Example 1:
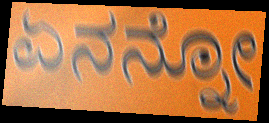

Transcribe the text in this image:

ಏನನ್ನೋ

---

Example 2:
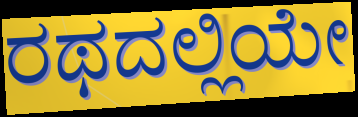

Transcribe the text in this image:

ರಥದಲ್ಲಿಯೇ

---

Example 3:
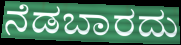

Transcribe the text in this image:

ನೆಡಬಾರದು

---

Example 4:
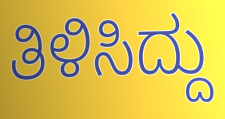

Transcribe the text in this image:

ತಿಳಿಸಿದ್ದು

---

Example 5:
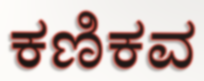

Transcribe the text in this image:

ಕಣಿಕವ